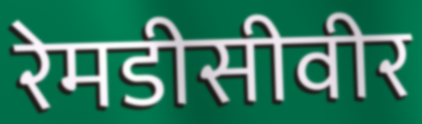
रेमडीसीवीर